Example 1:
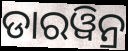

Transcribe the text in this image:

ଡାରୱିନ୍ର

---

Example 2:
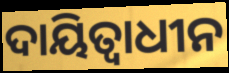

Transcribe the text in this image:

ଦାୟିତ୍ୱାଧୀନ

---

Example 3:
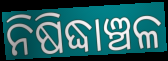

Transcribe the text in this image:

ନିଷିଦ୍ଧାଞ୍ଚଳ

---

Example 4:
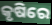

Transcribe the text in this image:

କୃଷିରେ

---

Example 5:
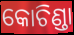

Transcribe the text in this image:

କୋଚିଣ୍ଡା